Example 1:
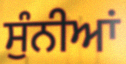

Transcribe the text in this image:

ਸੁੰਨੀਆਂ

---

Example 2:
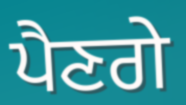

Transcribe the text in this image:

ਪੈਣਗੇ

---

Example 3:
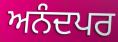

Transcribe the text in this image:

ਅਨੰਦਪਰ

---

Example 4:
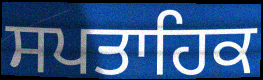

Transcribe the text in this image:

ਸਪਤਾਹਿਕ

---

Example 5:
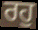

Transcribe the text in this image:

ਰਹੁ